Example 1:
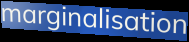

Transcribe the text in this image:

marginalisation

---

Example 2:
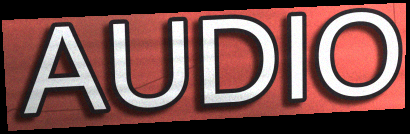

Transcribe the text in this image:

AUDIO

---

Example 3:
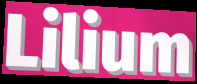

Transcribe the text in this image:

Lilium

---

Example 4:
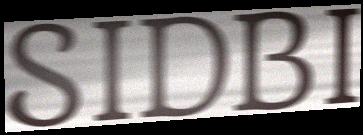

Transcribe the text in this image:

SIDBI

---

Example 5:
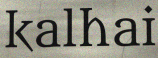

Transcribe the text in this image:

kalhai